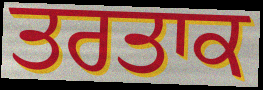
ਤਰਤਾਕ